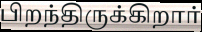
பிறந்திருக்கிறார்